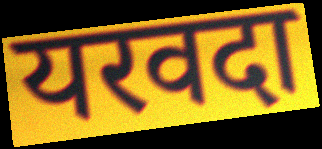
यरवदा